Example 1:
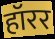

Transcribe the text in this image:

हॉरर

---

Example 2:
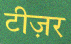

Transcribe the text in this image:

टीज़र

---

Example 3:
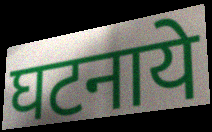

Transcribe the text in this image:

घटनाये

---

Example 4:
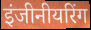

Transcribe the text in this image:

इंजीनीयरिंग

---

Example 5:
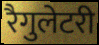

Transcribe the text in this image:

रैगुलेटरी